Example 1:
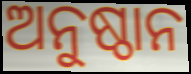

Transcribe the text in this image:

ଅନୁଷ୍ଠାନ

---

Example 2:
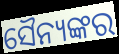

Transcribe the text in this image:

ସୈନ୍ୟଙ୍କର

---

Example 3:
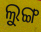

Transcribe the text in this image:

ଲୁଙ୍ଗ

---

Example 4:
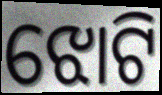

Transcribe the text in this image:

ଝୋଟି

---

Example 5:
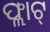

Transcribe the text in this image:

ଫ୍ଲାଟ୍